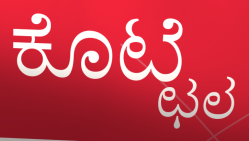
ಕೊಟ್ಟೈ